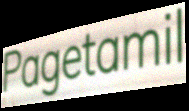
Pagetamil